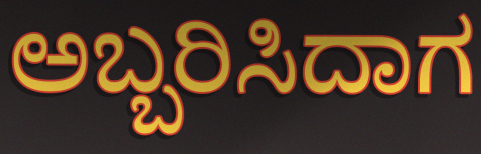
ಅಬ್ಬರಿಸಿದಾಗ